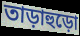
তাড়াহুড়ো